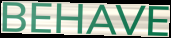
BEHAVE